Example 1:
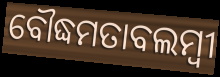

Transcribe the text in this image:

ବୌଦ୍ଧମତାବଲମ୍ବୀ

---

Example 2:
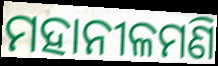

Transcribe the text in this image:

ମହାନୀଳମଣି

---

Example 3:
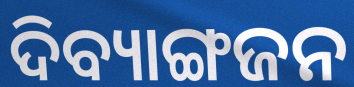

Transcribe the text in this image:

ଦିବ୍ୟାଙ୍ଗଜନ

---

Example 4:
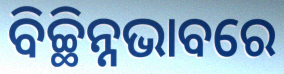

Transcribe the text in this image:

ବିଚ୍ଛିନ୍ନଭାବରେ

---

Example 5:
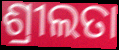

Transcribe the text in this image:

ଶ୍ରୀଲତା